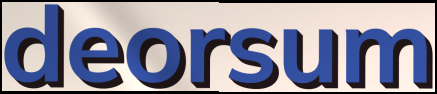
deorsum